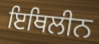
ਇਥਿਲੀਨ